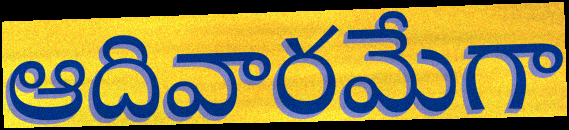
ఆదివారమేగా